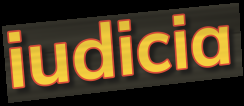
iudicia